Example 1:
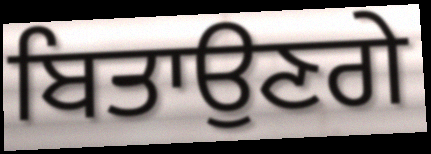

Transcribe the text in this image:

ਬਿਤਾਉਣਗੇ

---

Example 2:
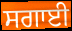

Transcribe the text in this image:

ਸਗਾਈ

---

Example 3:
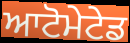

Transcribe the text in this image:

ਆਟੋਮੇਟੇਡ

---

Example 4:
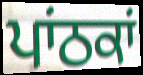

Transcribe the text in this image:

ਪਾਂਠਕਾਂ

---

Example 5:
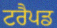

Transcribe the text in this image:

ਟਰੈਪਡ